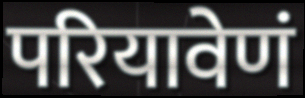
परियावेणं